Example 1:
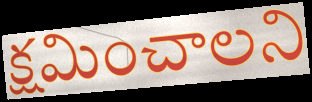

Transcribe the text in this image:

క్షమించాలని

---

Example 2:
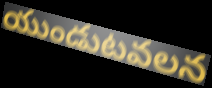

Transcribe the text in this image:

యుండుటవలన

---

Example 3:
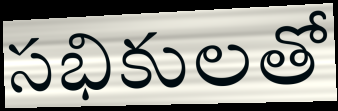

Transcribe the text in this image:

సభికులతో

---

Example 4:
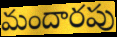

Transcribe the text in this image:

మందారపు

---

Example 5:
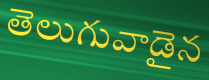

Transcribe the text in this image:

తెలుగువాడైన